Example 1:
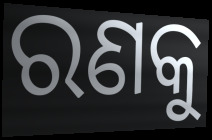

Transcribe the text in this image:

ରଣକୁ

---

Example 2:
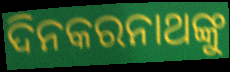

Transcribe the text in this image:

ଦିନକରନାଥଙ୍କୁ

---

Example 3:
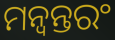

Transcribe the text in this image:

ମନ୍ବନ୍ତରଂ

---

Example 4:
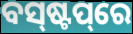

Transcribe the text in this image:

ବସ୍‌ଷ୍ଟପ୍‌ରେ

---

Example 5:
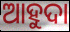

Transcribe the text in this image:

ଆହୁଦା